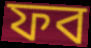
ফব